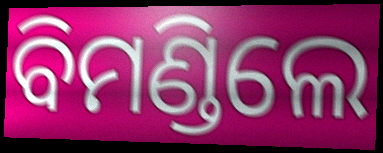
ବିମଣ୍ଡିଲେ